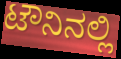
ಟೌನಿನಲ್ಲಿ